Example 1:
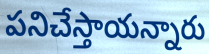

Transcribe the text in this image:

పనిచేస్తాయన్నారు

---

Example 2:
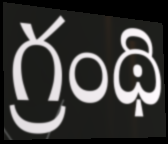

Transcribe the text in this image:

గ్రంథి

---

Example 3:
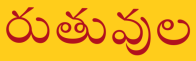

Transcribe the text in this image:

రుతువుల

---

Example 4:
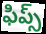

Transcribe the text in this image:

ఫిప్స్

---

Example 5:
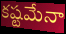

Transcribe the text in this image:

కష్టమేనా